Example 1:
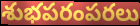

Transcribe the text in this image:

శుభపరంపరలు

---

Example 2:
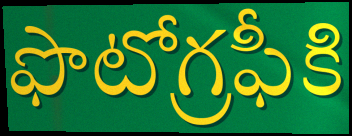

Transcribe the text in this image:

ఫొటోగ్రఫీకి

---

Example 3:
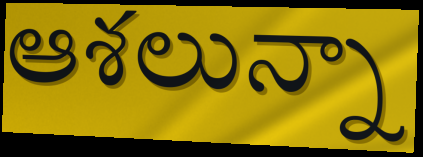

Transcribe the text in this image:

ఆశలున్నా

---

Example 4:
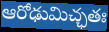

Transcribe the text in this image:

ఆరోఢుమిచ్ఛతః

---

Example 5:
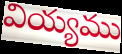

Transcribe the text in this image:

వియ్యము